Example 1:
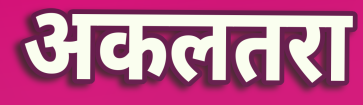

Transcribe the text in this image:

अकलतरा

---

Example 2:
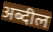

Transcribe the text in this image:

अब्दील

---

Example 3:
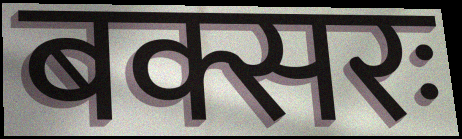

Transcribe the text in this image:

बक्सरः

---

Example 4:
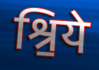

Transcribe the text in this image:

श्रि॒ये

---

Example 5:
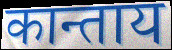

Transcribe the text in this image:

कान्ताय